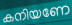
കനിയണേ